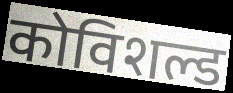
कोविशल्ड